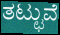
ತಟ್ಟುವೆ